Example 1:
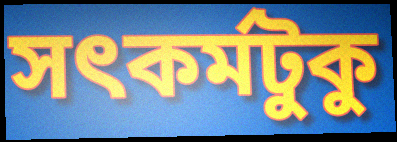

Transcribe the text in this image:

সৎকর্মটুকু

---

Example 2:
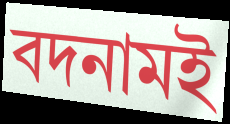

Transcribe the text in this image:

বদনামই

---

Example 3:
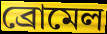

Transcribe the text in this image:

ব্রোমেল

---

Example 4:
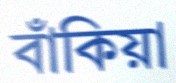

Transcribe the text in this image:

বাঁকিয়া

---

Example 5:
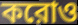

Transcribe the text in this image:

করোও